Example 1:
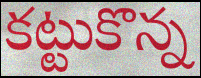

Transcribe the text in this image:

కట్టుకొన్న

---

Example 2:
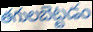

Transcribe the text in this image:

తగులబెట్టడం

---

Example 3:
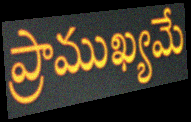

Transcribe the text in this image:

ప్రాముఖ్యమే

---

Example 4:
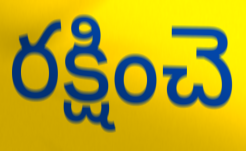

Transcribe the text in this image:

రక్షించె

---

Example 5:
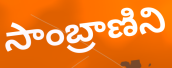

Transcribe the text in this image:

సాంబ్రాణిని